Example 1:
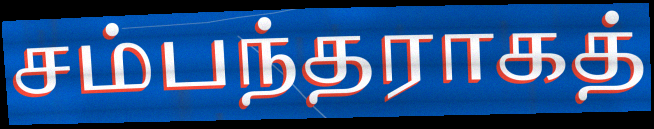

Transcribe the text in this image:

சம்பந்தராகத்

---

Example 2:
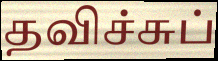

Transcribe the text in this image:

தவிச்சுப்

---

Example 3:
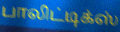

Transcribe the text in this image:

பாலிட்டிக்ஸ்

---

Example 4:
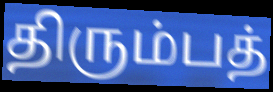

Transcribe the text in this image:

திரும்பத்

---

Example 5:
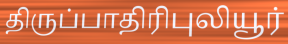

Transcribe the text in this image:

திருப்பாதிரிபுலியூர்